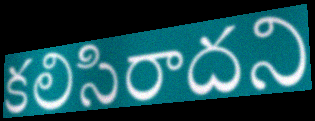
కలిసిరాదని